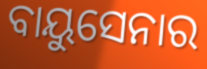
ବାୟୁସେନାର